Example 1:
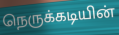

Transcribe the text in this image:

நெருக்கடியின்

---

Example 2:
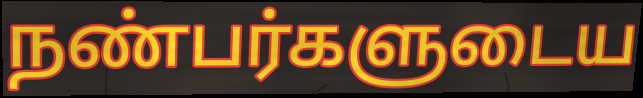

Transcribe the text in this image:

நண்பர்களுடைய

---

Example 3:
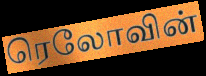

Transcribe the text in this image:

ரெலோவின்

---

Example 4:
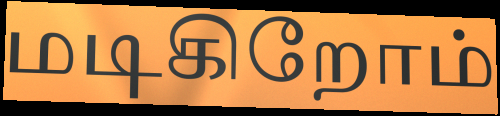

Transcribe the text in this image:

மடிகிறோம்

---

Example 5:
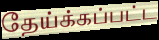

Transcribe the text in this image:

தேய்க்கப்பட்ட